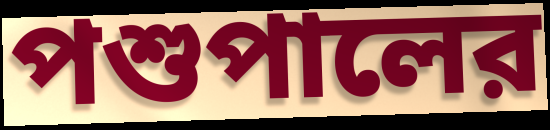
পশুপালের